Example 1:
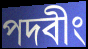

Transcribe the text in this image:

পদবীং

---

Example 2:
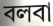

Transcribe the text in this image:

বলবা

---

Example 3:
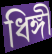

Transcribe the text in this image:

ধিঙ্গী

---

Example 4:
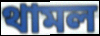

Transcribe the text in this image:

থামল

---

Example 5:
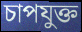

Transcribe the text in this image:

চাপযুক্ত